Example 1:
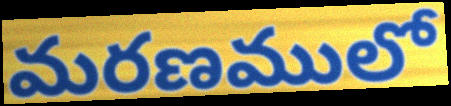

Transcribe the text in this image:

మరణములో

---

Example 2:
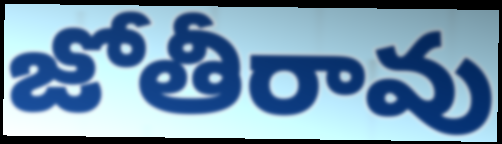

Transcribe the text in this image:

జోతీరావు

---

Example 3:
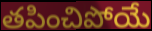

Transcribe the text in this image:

తపించిపోయే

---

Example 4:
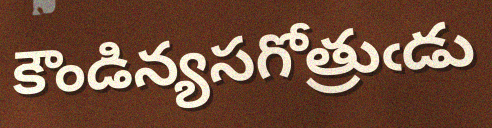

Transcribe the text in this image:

కౌండిన్యసగోత్రుఁడు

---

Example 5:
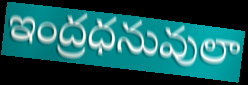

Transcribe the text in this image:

ఇంద్రధనువులా